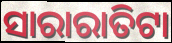
ସାରାରାତିଟା